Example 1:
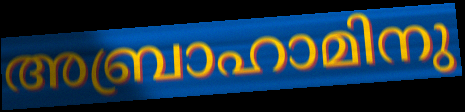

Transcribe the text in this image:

അബ്രാഹാമിനു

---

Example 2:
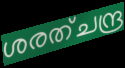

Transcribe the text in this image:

ശരത്ചന്ദ്ര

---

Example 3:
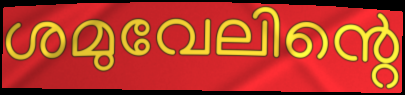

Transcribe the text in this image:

ശമുവേലിന്റെ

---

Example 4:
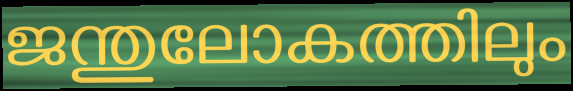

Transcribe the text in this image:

ജന്തുലോകത്തിലും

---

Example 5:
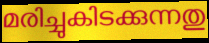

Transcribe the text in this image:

മരിച്ചുകിടക്കുന്നതു